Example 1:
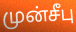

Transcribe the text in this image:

முன்சீபு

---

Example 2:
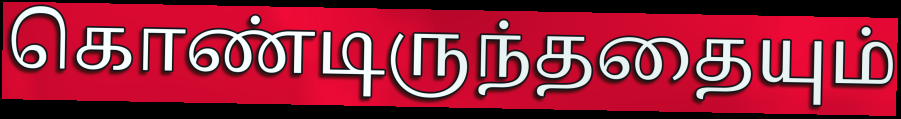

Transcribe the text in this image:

கொண்டிருந்ததையும்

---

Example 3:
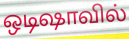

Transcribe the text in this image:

ஒடிஷாவில்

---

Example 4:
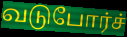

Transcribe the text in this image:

வடுபோர்ச்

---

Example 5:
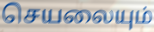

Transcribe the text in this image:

செயலையும்